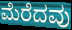
ಮೆರೆದವು